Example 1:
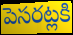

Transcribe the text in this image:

పెసరట్లకి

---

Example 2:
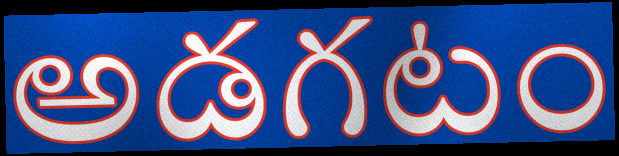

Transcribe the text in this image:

అడగటం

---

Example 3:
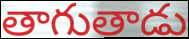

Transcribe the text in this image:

తాగుతాడు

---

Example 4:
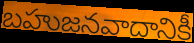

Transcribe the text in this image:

బహుజనవాదానికీ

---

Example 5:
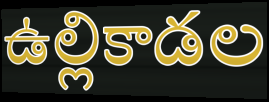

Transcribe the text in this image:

ఉల్లికాడల